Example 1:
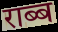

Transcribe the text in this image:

राब्ब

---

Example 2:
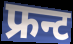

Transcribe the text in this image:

फ्रन्ट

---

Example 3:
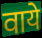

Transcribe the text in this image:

वाये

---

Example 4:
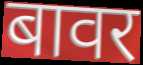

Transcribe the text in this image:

बावर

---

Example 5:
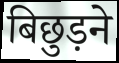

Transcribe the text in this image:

बिछुड़ने